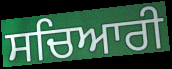
ਸਚਿਆਰੀ